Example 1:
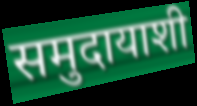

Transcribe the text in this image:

समुदायाशी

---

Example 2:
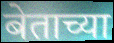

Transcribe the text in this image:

बेताच्या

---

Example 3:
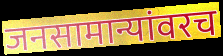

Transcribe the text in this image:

जनसामान्यांवरच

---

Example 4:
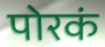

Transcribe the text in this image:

पोरकं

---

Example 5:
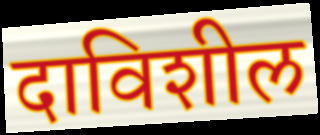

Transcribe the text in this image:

दाविशील